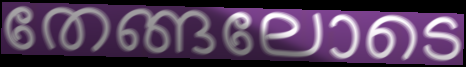
തേങ്ങലോടെ